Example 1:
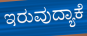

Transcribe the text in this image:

ಇರುವುದ್ಯಾಕೆ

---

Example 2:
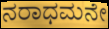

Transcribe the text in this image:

ನರಾಧಮನೇ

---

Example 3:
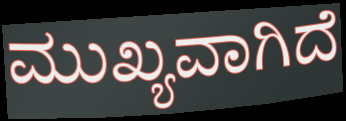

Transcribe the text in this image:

ಮುಖ್ಯವಾಗಿದೆ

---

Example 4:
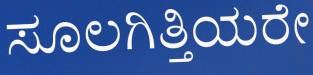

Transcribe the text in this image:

ಸೂಲಗಿತ್ತಿಯರೇ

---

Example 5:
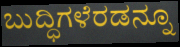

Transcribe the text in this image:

ಬುದ್ಧಿಗಳೆರಡನ್ನೂ